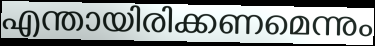
എന്തായിരിക്കണമെന്നും